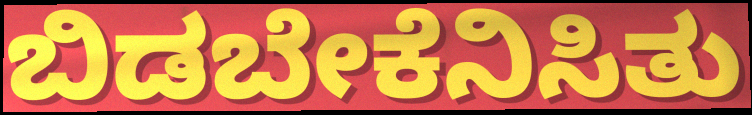
ಬಿಡಬೇಕೆನಿಸಿತು